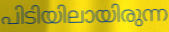
പിടിയിലായിരുന്ന